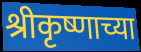
श्रीकृष्णाच्या